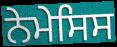
ਨੇਮੇਸਿਸ